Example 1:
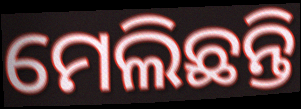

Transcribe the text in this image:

ମେଲିଛନ୍ତି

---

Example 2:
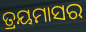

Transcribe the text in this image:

ତ୍ରୟମାସର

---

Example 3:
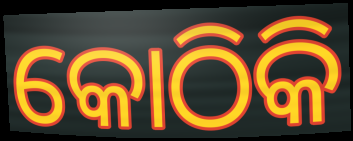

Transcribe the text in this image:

କୋଠିକି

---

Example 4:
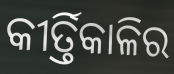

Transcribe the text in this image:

କୀର୍ତ୍ତିକାଳିର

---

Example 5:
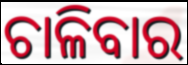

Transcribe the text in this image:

ଚାଳିବାର